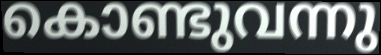
കൊണ്ടുവന്നു